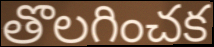
తొలగించక